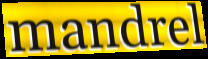
mandrel